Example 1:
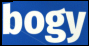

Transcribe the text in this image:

bogy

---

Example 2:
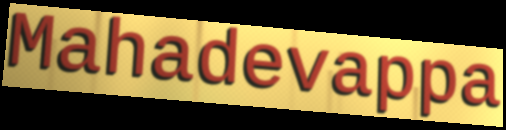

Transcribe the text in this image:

Mahadevappa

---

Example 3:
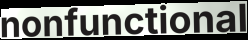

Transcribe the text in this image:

nonfunctional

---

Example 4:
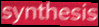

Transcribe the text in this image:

synthesis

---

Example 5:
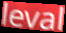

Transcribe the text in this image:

leval